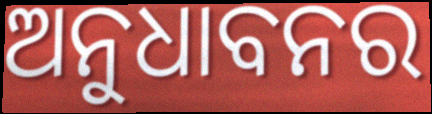
ଅନୁଧାବନର